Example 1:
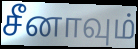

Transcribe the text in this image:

சீனாவும்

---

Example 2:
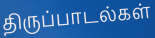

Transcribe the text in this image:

திருப்பாடல்கள்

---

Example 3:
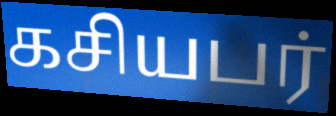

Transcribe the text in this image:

கசியபர்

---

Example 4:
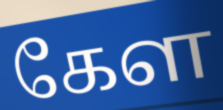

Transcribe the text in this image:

கேள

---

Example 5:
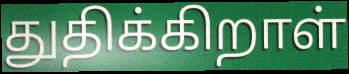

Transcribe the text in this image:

துதிக்கிறாள்